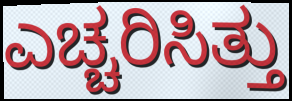
ಎಚ್ಚರಿಸಿತ್ತು